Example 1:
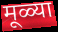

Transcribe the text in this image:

मूळ्या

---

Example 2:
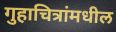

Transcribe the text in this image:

गुहाचित्रांमधील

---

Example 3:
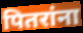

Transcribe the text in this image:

पितरांना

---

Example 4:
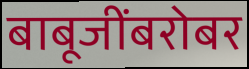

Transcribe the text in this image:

बाबूजींबरोबर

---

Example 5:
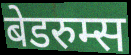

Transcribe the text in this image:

बेडरुम्स